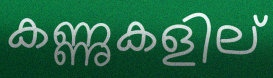
കണ്ണുകളില്